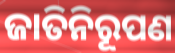
ଜାତିନିରୂପଣ